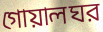
গোয়ালঘর